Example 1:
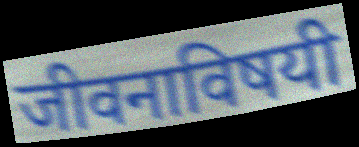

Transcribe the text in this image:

जीवनाविषयी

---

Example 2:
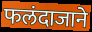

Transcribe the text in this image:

फलंदाजाने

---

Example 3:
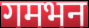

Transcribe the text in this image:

गमभन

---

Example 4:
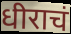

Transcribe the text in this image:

धीराचं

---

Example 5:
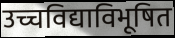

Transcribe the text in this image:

उच्चविद्याविभूषित